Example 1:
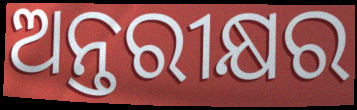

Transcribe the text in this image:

ଅନ୍ତରୀକ୍ଷର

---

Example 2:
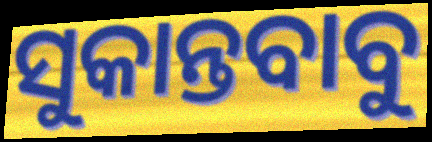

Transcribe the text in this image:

ସୁକାନ୍ତବାବୁ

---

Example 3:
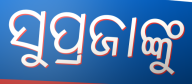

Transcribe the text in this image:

ସୁପ୍ରଜାଙ୍କୁ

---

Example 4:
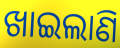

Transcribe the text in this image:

ଖାଇଲାଣି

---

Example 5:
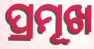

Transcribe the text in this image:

ପ୍ରମୂଖ